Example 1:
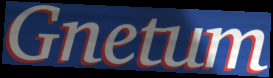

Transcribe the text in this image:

Gnetum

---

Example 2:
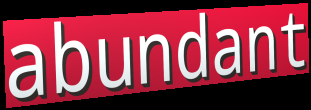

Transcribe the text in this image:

abundant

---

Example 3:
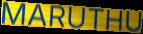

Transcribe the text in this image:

MARUTHU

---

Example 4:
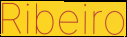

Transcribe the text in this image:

Ribeiro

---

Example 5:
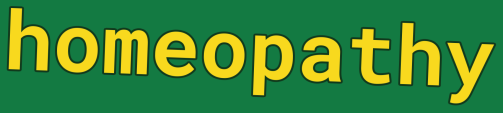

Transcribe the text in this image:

homeopathy